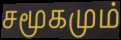
சமூகமும்